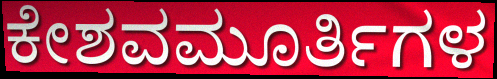
ಕೇಶವಮೂರ್ತಿಗಳ